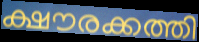
ക്ഷൗരക്കത്തി